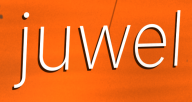
juwel